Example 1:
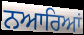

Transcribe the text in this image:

ਨਆਰਿਆਂ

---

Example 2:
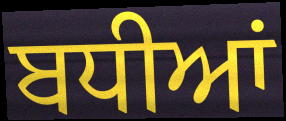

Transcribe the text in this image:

ਬਧੀਆਂ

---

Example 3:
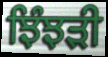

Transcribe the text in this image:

ਝਿੰਝੜੀ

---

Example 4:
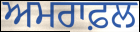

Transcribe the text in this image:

ਅਮਰਾਫ਼ਲ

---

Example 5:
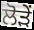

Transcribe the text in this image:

ਲੋੜੇਂ